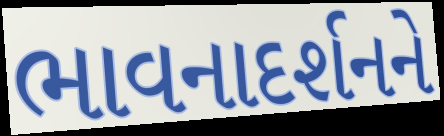
ભાવનાદર્શનને